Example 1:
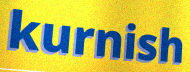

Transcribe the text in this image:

kurnish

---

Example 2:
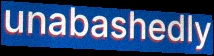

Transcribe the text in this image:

unabashedly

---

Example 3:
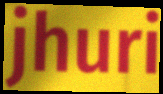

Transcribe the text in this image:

jhuri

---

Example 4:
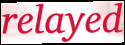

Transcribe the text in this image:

relayed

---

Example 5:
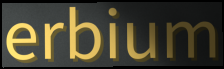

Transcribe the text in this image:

erbium